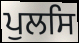
ਪੁਲਸਿ